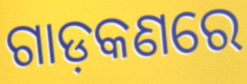
ଗାଡ଼କଣରେ